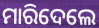
ମାରିଦେଲେ